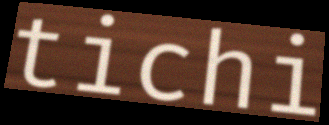
tichi